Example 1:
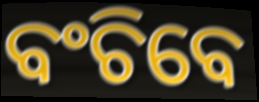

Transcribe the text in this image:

ବଂଚିବେ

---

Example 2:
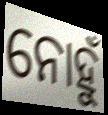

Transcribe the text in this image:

ନୋହୁଁ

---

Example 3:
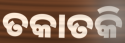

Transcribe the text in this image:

ତକାତକି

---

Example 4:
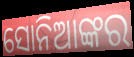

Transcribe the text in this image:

ସୋନିଆଙ୍କର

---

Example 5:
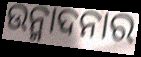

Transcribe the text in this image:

ଉନ୍ମାଦନାର